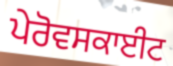
ਪੇਰੋਵਸਕਾਈਟ